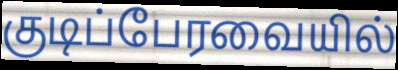
குடிப்பேரவையில்